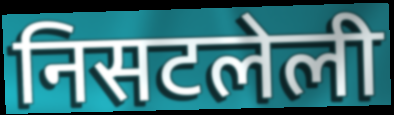
निसटलेली